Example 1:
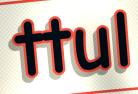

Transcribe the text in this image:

ttul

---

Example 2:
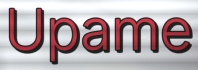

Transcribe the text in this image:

Upame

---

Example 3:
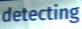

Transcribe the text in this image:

detecting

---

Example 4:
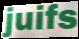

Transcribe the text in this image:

juifs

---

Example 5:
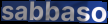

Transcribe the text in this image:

sabbaso